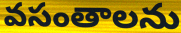
వసంతాలను